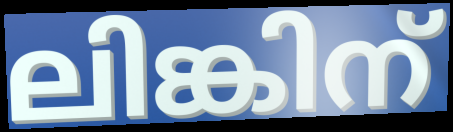
ലിങ്കിന്